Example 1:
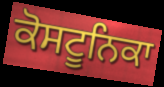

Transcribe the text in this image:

ਕੋਸਟੂਨਿਕਾ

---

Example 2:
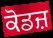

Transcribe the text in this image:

ਕੋਡਜ਼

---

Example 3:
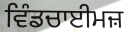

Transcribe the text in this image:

ਵਿੰਡਚਾਈਮਜ਼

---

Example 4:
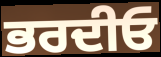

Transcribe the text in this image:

ਭਰਦੀਓ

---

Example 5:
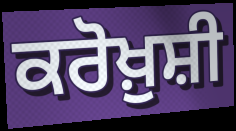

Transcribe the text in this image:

ਕਰੋਖ਼ੁਸ਼ੀ